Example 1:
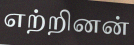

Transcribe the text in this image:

எற்றினன்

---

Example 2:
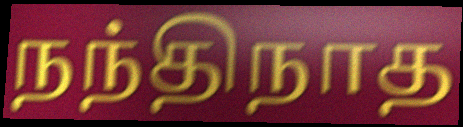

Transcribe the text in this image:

நந்திநாத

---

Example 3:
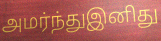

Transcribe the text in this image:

அமர்ந்துஇனிது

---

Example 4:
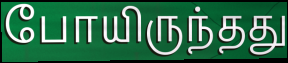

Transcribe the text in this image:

போயிருந்தது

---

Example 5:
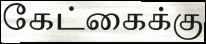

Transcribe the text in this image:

கேட்கைக்கு